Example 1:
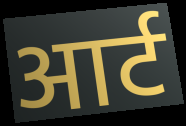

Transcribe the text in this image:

आर्ट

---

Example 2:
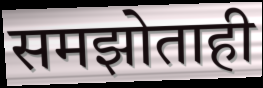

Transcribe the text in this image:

समझोताही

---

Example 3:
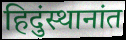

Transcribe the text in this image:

हिदुंस्थानांत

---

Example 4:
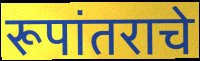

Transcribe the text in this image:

रूपांतराचे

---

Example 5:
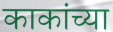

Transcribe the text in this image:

काकांच्या